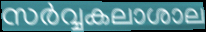
സർവ്വകലാശാല